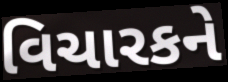
વિચારકને